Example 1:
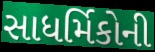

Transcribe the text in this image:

સાધર્મિકોની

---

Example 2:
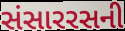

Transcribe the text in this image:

સંસારરસની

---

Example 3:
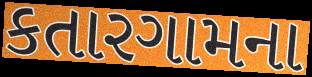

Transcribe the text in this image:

કતારગામના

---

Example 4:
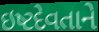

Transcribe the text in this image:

ઇષ્ટદેવતાને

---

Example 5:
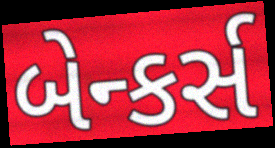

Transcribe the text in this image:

બેન્કર્સ